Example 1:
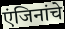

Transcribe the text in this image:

एंजिनांचे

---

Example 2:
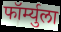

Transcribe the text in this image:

फॉर्म्युला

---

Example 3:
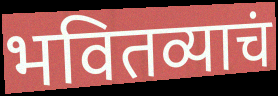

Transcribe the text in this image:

भवितव्याचं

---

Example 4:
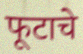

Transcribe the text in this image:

फूटाचे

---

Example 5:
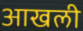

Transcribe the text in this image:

आखली